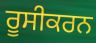
ਰੂਸੀਕਰਨ